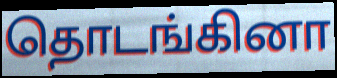
தொடங்கினா